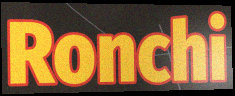
Ronchi